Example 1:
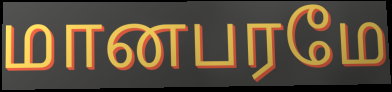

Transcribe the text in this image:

மானபரமே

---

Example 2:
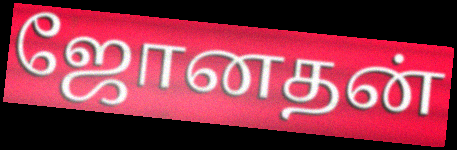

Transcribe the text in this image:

ஜோனதன்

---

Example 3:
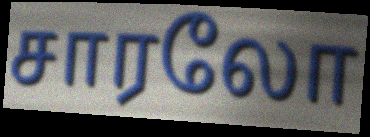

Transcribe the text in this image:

சாரலோ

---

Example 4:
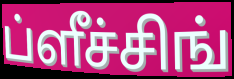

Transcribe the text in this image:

ப்ளீச்சிங்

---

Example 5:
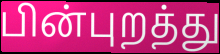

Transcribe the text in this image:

பின்புறத்து